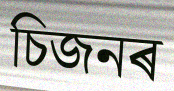
চিজনৰ